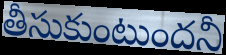
తీసుకుంటుందనీ